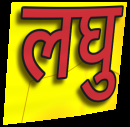
लघु